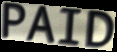
PAID